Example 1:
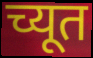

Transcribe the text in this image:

च्यूत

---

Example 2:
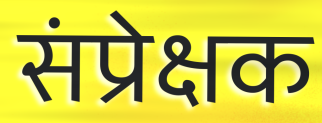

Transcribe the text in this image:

संप्रेक्षक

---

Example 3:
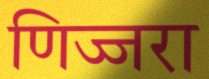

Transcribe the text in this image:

णिज्जरा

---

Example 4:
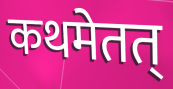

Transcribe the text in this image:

कथमेतत्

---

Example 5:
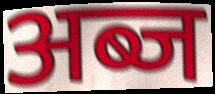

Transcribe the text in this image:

अब्ज